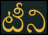
టీని